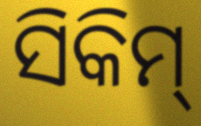
ସିକିମ୍